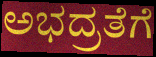
ಅಭದ್ರತೆಗೆ